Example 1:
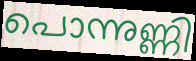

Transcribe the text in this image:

പൊന്നുണ്ണി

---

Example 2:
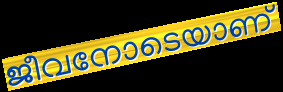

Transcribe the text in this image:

ജീവനോടെയാണ്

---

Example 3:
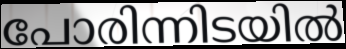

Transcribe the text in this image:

പോരിന്നിടയിൽ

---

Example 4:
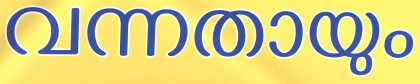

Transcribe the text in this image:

വന്നതായും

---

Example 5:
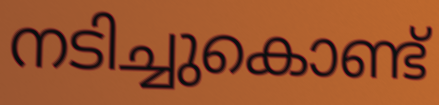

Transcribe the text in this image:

നടിച്ചുകൊണ്ട്